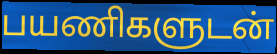
பயணிகளுடன்